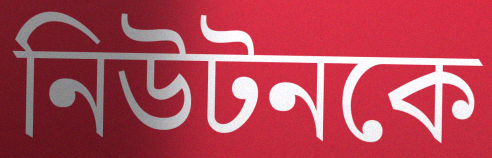
নিউটনকে